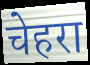
चेहरा